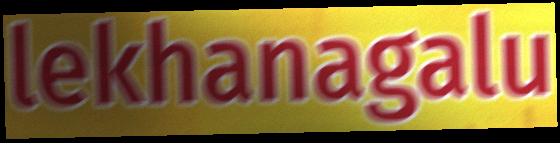
lekhanagalu